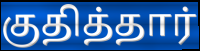
குதித்தார்